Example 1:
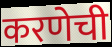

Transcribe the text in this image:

करणेची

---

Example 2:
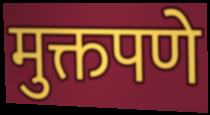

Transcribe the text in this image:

मुक्तपणे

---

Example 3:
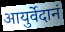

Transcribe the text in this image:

आयुर्वेदानं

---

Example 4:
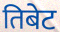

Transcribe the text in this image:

तिबेट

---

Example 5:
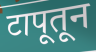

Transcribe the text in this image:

टापूतून